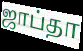
ஜாப்தா